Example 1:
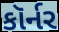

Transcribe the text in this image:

કૉર્નર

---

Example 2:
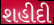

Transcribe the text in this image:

શહીદી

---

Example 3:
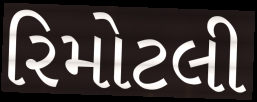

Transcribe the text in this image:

રિમોટલી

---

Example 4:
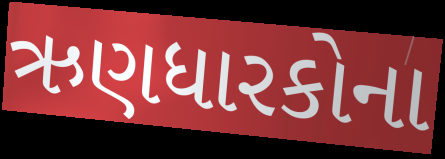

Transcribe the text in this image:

ઋણધારકોના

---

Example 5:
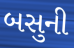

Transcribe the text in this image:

બસુની